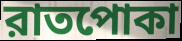
রাতপোকা